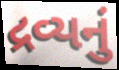
દ્રવ્યનું